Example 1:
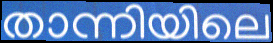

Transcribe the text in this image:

താന്നിയിലെ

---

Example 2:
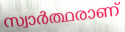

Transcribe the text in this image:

സ്വാർത്ഥരാണ്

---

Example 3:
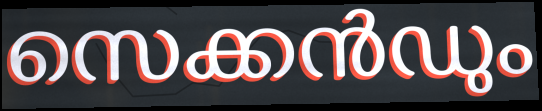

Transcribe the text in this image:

സെക്കൻഡും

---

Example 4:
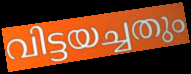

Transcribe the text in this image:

വിട്ടയച്ചതും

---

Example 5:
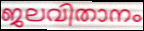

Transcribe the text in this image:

ജലവിതാനം